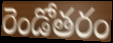
రెండోతరం